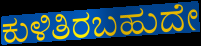
ಕುಳಿತಿರಬಹುದೇ